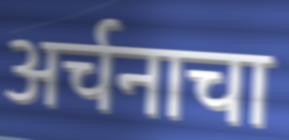
अर्चनाचा